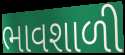
ભાવશાળી